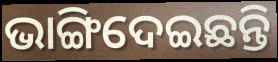
ଭାଙ୍ଗିଦେଇଛନ୍ତି